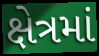
ક્ષેત્રમાં